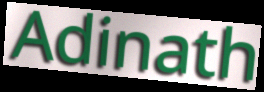
Adinath